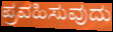
ಪ್ರವಹಿಸುವುದು